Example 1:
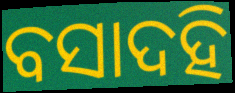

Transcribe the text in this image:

ବସାଦହି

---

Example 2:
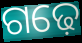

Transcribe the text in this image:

ଗଢ଼େ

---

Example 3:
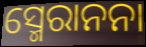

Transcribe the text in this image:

ସ୍ମେରାନନା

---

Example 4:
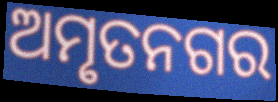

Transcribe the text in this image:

ଅମୃତନଗର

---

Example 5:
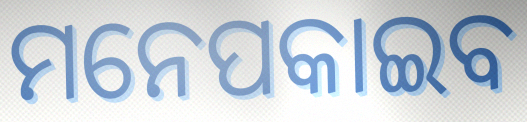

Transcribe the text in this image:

ମନେପକାଇବ